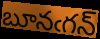
బూనఁగన్